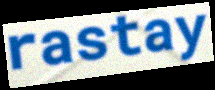
rastay